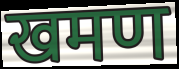
खमण